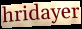
hridayer